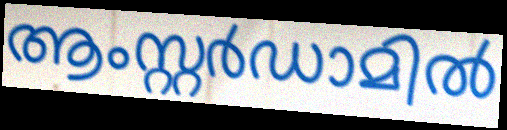
ആംസ്റ്റർഡാമിൽ